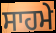
ਸਾਹਮੇ